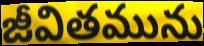
జీవితమును